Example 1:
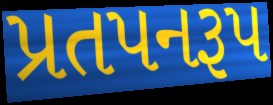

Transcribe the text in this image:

પ્રતપનરૂપ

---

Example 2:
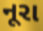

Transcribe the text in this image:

નૂરા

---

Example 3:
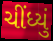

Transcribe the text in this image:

ચીંધ્યું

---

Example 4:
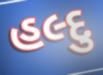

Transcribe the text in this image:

હલ્દુ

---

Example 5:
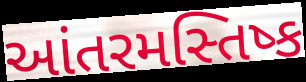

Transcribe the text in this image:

આંતરમસ્તિષ્ક